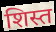
शिस्त